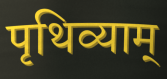
पृथिव्याम्